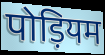
पोड़ियम